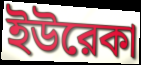
ইউরেকা